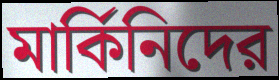
মার্কিনিদের